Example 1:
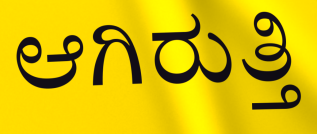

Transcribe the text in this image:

ಆಗಿರುತ್ತಿ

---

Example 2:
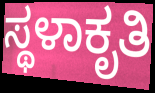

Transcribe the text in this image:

ಸ್ಥಳಾಕೃತಿ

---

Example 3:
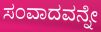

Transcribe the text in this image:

ಸಂವಾದವನ್ನೇ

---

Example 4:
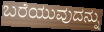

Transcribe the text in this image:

ಬರೆಯುವುದನ್ನು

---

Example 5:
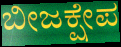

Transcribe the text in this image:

ಬೀಜಕ್ಷೇಪ